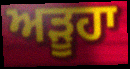
ਅੜੂਹਾ